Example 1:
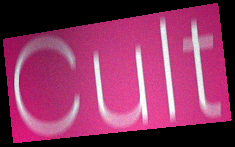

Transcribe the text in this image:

Cult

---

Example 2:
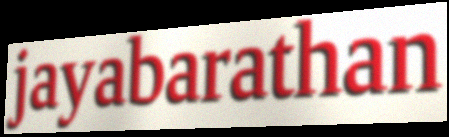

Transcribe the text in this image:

jayabarathan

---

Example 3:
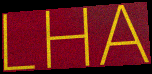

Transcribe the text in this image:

LHA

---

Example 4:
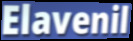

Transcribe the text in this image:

Elavenil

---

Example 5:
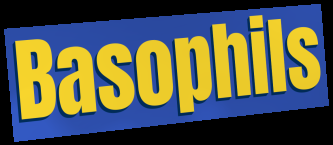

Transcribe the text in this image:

Basophils